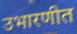
उभारणीत